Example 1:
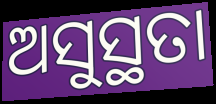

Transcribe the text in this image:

ଅସୁସ୍ଥତା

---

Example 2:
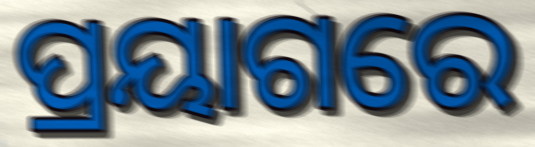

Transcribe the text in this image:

ପ୍ରୟାଗରେ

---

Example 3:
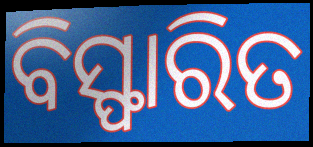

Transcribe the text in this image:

ବିସ୍ଫାରିତ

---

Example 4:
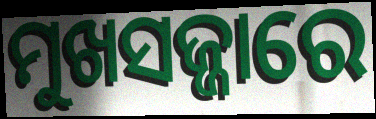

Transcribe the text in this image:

ମୁଖସଜ୍ଜାରେ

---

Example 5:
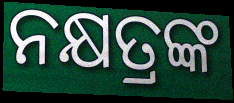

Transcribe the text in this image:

ନକ୍ଷତ୍ରଙ୍କ